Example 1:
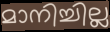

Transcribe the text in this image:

മാനിച്ചില്ല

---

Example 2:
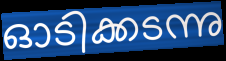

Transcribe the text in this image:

ഓടിക്കടന്നു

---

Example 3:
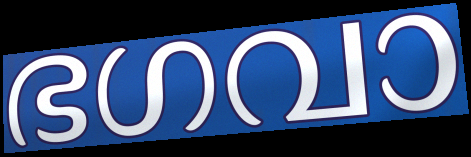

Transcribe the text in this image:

ഭഗവാ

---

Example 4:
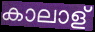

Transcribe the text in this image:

കാലാള്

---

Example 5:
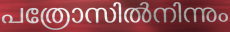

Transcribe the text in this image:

പത്രോസിൽനിന്നും